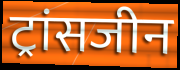
ट्रांसजीन